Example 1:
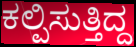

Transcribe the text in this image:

ಕಲ್ಪಿಸುತ್ತಿದ್ದ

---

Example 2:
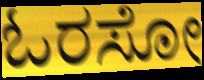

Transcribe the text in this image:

ಓರಸೋ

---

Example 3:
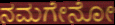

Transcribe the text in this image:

ನಮಗೇನೋ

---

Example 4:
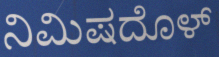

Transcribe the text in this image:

ನಿಮಿಷದೊಳ್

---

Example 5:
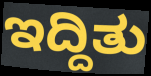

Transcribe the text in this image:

ಇದ್ದಿತು